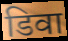
डिवा